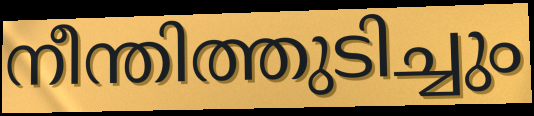
നീന്തിത്തുടിച്ചും